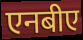
एनबीए